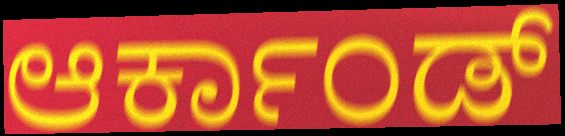
ಆರ್ಕಾಂಡ್